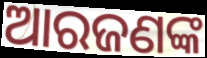
ଆରଜଣଙ୍କ